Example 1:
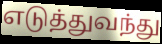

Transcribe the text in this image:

எடுத்துவந்து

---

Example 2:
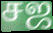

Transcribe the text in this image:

சஜ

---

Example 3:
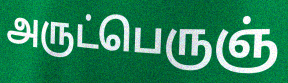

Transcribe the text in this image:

அருட்பெருஞ்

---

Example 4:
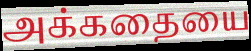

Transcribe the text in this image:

அக்கதையை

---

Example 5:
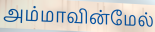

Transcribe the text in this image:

அம்மாவின்மேல்